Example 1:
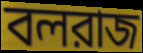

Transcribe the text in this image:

বলরাজ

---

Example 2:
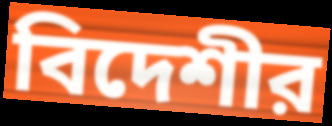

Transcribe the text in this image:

বিদেশীর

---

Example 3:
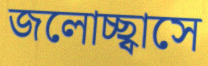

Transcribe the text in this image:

জলোচ্ছ্বাসে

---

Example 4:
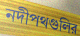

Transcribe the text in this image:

নদীপথগুলির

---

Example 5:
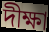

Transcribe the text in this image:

দীক্ষা